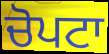
ਚੋਪਟਾ